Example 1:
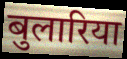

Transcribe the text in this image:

बुलारिया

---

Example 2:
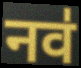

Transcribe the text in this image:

नव॑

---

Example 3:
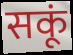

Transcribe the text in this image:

सकूं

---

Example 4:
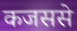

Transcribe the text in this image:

कजससे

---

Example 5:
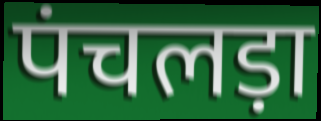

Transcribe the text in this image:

पंचलड़ा